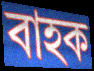
বাহক